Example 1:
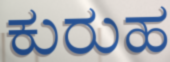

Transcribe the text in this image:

ಕುರುಹ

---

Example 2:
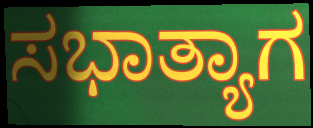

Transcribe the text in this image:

ಸಭಾತ್ಯಾಗ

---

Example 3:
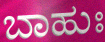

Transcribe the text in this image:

ಬಾಹುಃ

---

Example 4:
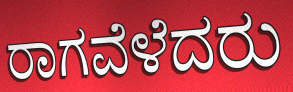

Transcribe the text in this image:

ರಾಗವೆಳೆದರು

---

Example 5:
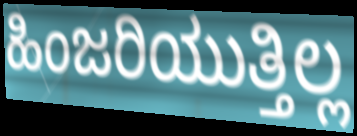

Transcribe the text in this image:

ಹಿಂಜರಿಯುತ್ತಿಲ್ಲ